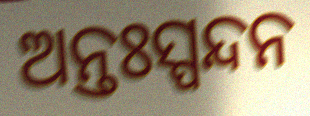
ଅନ୍ତଃସ୍ପନ୍ଦନ